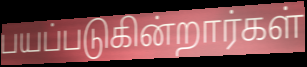
பயப்படுகின்றார்கள்